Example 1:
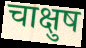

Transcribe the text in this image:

चाक्षुष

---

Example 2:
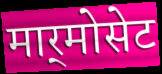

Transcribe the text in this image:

मार्मोसेट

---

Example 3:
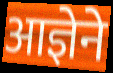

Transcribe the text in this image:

आज्ञेने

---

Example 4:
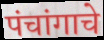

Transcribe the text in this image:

पंचांगाचे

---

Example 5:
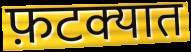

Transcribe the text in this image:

फ़टक्यात